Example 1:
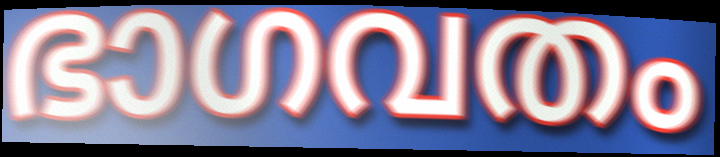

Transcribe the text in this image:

ഭാഗവതം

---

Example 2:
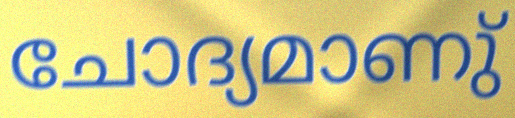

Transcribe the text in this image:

ചോദ്യമാണു്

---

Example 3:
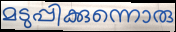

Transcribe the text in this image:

മടുപ്പിക്കുന്നൊരു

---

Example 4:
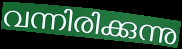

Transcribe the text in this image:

വന്നിരിക്കുന്നു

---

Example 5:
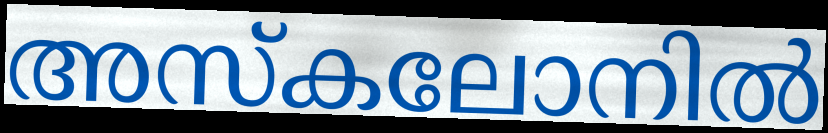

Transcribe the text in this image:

അസ്കലോനിൽ